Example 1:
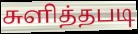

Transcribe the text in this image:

சுளித்தபடி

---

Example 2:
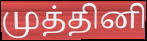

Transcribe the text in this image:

முத்தினி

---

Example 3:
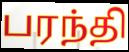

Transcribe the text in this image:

பரந்தி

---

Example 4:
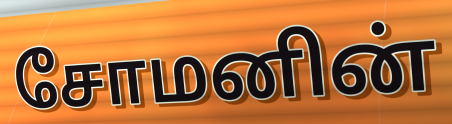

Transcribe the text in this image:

சோமனின்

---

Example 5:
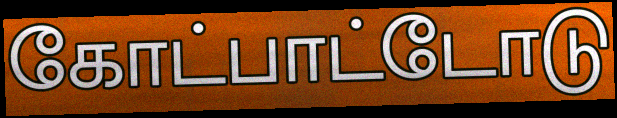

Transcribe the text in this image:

கோட்பாட்டோடு